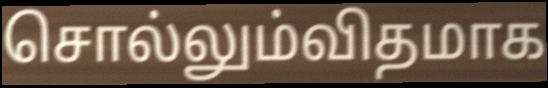
சொல்லும்விதமாக